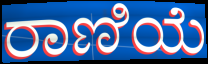
ರಾಣಿಯೆ